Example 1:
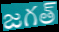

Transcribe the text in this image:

జగత్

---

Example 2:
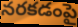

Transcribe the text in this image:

నరకడంపై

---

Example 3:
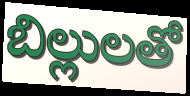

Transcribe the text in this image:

బిల్లులతో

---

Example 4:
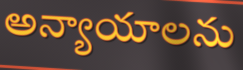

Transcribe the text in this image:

అన్యాయాలను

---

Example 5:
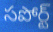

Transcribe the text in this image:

సపోర్ట్